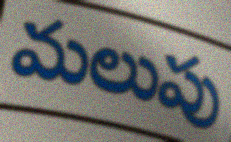
మలుపు